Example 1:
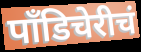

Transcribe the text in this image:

पाँडिचेरीचं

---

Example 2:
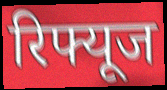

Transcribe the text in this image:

रिफ्यूज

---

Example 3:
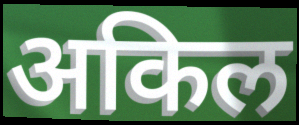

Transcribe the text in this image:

अकिल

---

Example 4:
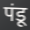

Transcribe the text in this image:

पंडू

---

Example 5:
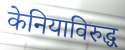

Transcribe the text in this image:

केनियाविरुद्ध